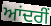
ਆਂਦਰੀਂ